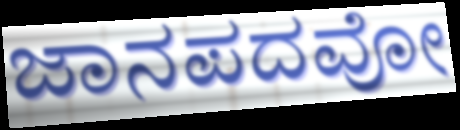
ಜಾನಪದವೋ